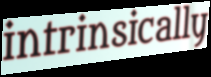
intrinsically